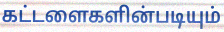
கட்டளைகளின்படியும்